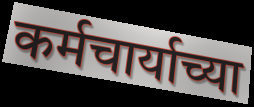
कर्मचार्याच्या